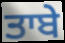
ਤਾਬੇ